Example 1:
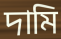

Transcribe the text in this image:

দামি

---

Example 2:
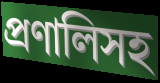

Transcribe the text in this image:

প্রণালিসহ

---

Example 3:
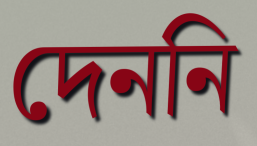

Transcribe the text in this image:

দেননি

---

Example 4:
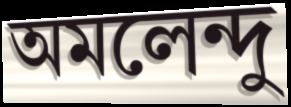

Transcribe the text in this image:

অমলেন্দু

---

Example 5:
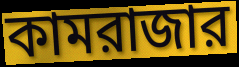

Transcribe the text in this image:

কামরাজার